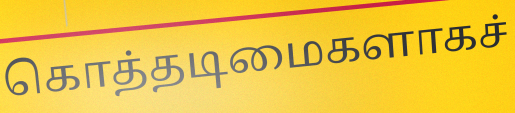
கொத்தடிமைகளாகச்